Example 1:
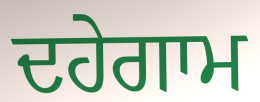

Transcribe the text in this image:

ਦਹੇਗਾਮ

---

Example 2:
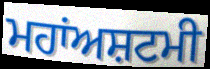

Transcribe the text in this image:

ਮਹਾਂਅਸ਼ਟਮੀ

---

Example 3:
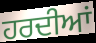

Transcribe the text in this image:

ਹਰਦੀਆਂ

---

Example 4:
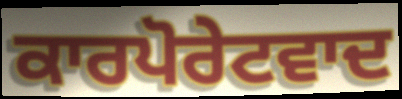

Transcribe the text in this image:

ਕਾਰਪੋਰੇਟਵਾਦ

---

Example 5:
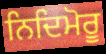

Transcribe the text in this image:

ਨਿਦਿਮੋਰੂ